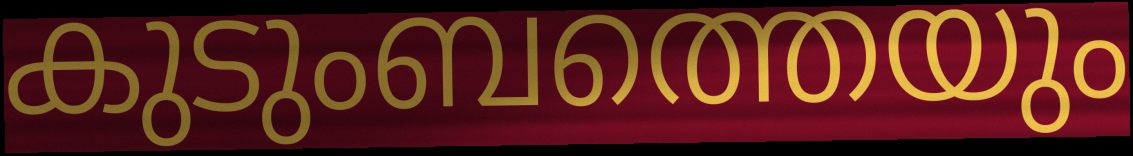
കുടുംബത്തെയും